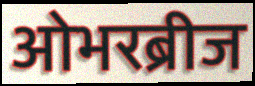
ओभरब्रीज